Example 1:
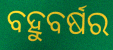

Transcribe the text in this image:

ବହୁବର୍ଷର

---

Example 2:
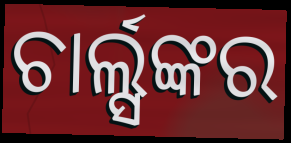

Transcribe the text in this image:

ଚାର୍ଲ୍ସଙ୍କର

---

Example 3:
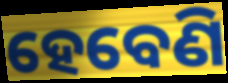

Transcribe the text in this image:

ହେବେଣି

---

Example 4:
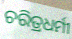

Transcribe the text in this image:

ଚରିତ୍ରଧର୍ମୀ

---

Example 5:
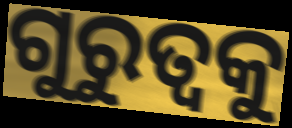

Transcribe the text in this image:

ଗୁରୁତ୍ୱକୁ